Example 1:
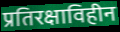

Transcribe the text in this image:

प्रतिरक्षाविहीन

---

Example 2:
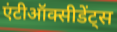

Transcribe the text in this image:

एंटीऑक्सीडेंट्स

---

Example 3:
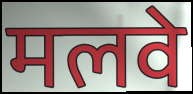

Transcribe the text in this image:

मलवे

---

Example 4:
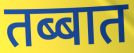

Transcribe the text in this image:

तब्बात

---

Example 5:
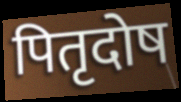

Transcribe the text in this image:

पितृदोष